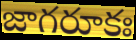
జాగరూకః